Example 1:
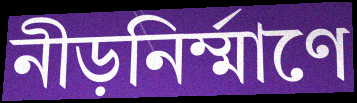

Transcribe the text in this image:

নীড়নির্ম্মাণে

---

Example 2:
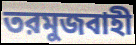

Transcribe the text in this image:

তরমুজবাহী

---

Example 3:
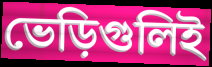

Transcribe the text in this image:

ভেড়িগুলিই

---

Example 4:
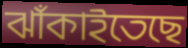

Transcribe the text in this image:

ঝাঁকাইতেছে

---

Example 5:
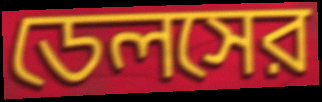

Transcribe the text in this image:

ডেলসের